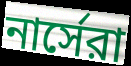
নার্সেরা